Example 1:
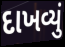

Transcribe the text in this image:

દાખવ્યું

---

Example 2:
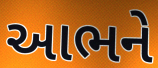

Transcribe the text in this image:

આભને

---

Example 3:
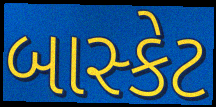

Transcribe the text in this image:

બાસ્કેટ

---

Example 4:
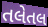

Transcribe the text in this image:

તલેતલ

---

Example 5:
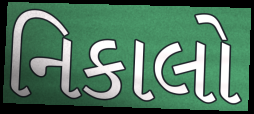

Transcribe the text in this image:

નિકાલો